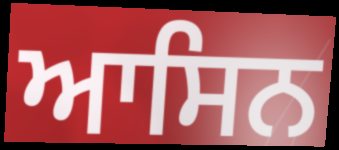
ਆਸਿਨ